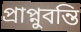
প্রাপ্নুবন্তি